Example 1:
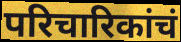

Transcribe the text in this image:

परिचारिकांचं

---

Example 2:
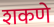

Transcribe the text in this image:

शकणे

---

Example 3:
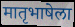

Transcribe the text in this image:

मातृभाषेला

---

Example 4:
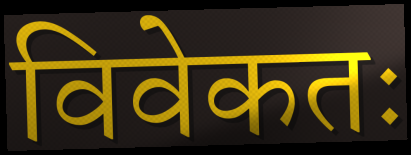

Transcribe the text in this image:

विवेकतः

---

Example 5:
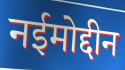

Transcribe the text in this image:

नईमोद्दीन